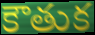
కౌతుక